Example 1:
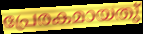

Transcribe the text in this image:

പ്രേരകമായതു്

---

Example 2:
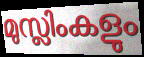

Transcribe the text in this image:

മുസ്ലിംകളും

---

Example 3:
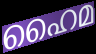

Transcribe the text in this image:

ഹൈമ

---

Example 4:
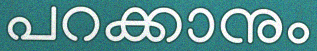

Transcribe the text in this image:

പറക്കാനും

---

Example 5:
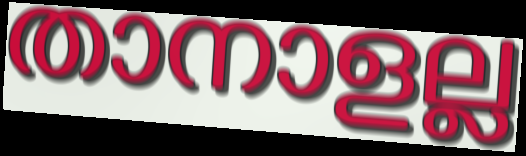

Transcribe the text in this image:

താനാളല്ല